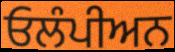
ਓਲੰਪੀਅਨ